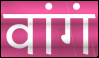
वांगं